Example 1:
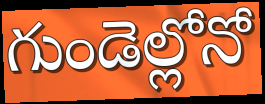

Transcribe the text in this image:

గుండెల్లోనో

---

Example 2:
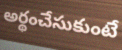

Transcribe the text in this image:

అర్థంచేసుకుంటే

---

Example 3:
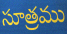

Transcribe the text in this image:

సూత్రము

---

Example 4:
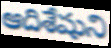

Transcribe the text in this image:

ఆదిశేషుని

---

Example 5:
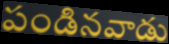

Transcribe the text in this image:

పండినవాడు